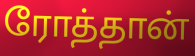
ரோத்தான்